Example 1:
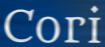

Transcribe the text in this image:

Cori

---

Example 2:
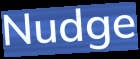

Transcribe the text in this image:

Nudge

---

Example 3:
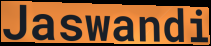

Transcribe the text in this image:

Jaswandi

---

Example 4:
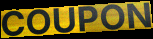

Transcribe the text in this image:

COUPON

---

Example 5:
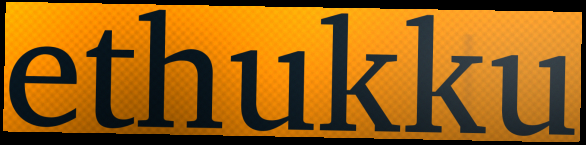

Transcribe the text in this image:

ethukku